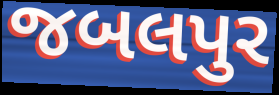
જબલપુર